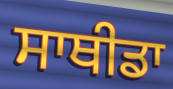
ਸਾਥੀਡਾ